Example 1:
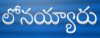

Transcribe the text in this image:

లోనయ్యారు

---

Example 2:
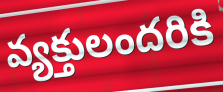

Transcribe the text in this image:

వ్యక్తులందరికి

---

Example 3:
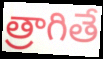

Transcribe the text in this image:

త్రాగితే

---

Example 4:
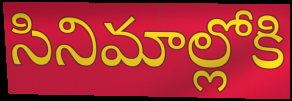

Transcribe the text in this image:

సినిమాల్లోకి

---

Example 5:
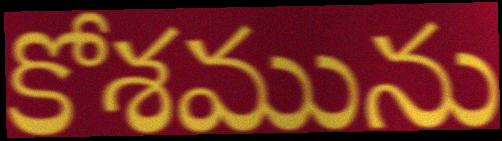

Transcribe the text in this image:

కోశమును